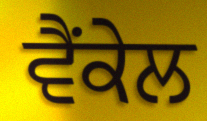
ਵੈਂਕੇਲ